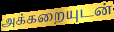
அக்கறையுடன்